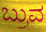
ಬ್ರುವ